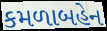
કમળાબહેન